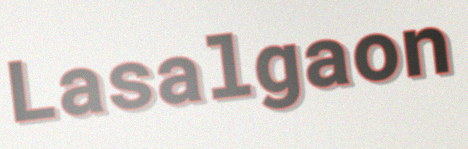
Lasalgaon